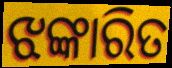
ଝଙ୍କାରିତ